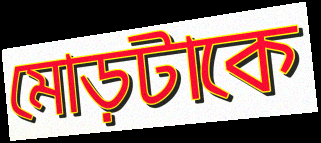
মোড়টাকে